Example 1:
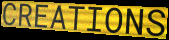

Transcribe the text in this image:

CREATIONS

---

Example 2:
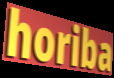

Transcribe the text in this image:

horiba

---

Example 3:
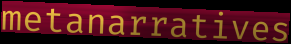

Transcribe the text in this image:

metanarratives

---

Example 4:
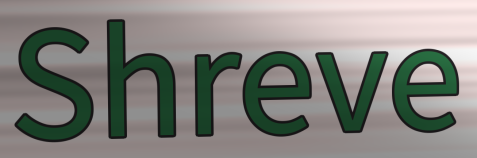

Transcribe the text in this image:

Shreve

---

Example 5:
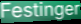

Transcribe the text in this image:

Festinger